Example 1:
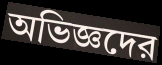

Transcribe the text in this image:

অভিজ্ঞদের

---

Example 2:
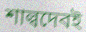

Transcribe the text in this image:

শাল্বদেবই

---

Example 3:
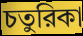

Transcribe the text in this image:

চতুরিকা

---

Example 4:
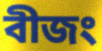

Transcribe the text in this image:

বীজং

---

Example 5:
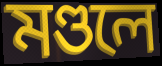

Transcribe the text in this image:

মণ্ডলে